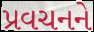
પ્રવચનને